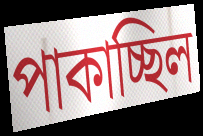
পাকাচ্ছিল